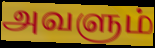
அவளும்